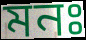
মনঃ